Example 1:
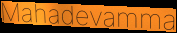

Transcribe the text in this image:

Mahadevamma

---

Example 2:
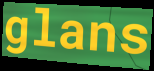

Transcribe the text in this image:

glans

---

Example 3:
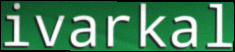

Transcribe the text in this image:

ivarkal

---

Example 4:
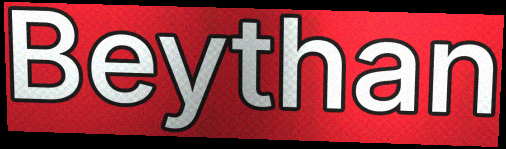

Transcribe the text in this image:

Beythan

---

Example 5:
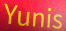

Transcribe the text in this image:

Yunis